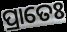
ପ୍ରାତେଃ